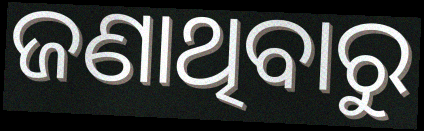
ଜଣାଥିବାରୁ